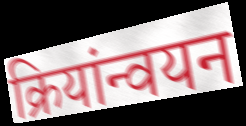
क्रियांन्वयन